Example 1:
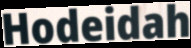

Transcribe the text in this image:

Hodeidah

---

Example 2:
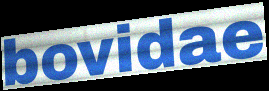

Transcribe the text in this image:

bovidae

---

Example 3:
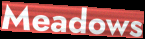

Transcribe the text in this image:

Meadows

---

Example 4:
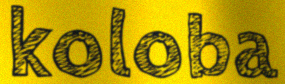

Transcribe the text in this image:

koloba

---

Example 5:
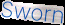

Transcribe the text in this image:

Sworn